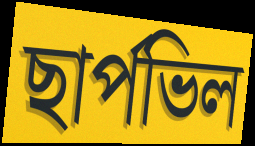
ছাৰ্পভিল